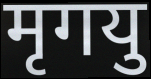
मृगयु